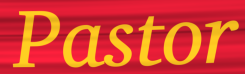
Pastor